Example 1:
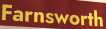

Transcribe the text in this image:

Farnsworth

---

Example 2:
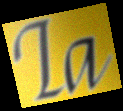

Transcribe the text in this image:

Ia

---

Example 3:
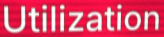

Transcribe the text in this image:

Utilization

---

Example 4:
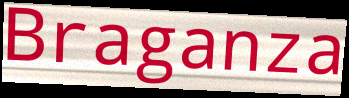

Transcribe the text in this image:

Braganza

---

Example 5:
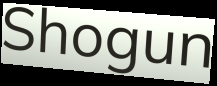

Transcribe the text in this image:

Shogun